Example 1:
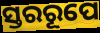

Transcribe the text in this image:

ସ୍ତରରୂପେ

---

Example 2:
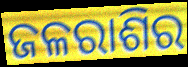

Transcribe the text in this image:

ଜଳରାଶିର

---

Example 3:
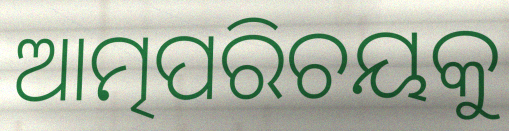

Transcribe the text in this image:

ଆତ୍ମପରିଚୟକୁ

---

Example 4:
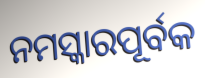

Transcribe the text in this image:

ନମସ୍କାରପୂର୍ବକ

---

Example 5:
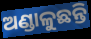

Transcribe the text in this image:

ଅଣ୍ଡାଳୁଛନ୍ତି